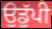
ਉਡੁੱਪੀ